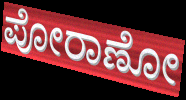
ಪೋರಾಣೋ